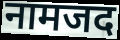
नामजद